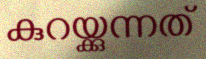
കുറയ്ക്കുന്നത്